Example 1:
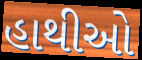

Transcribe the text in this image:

હાથીઓ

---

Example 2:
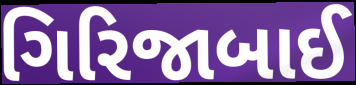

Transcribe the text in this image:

ગિરિજાબાઈ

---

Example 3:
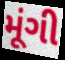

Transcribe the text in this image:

મૂંગી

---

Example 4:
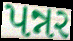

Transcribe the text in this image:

પન્નર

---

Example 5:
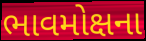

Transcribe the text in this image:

ભાવમોક્ષના